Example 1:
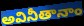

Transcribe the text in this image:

అవినీతానాం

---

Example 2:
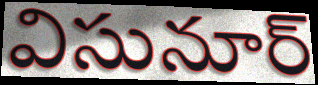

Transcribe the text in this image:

విసునూర్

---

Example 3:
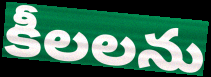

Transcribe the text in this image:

కీలలను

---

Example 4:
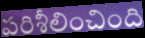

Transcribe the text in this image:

పరిశీలించింది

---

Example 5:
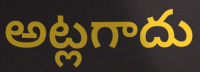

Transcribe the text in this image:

అట్లగాదు